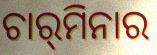
ଚାର୍‌ମିନାର